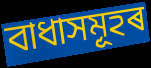
বাধাসমূহৰ